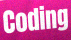
Coding